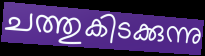
ചത്തുകിടക്കുന്നു